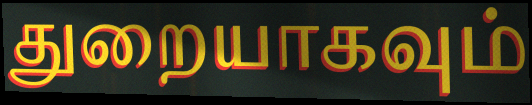
துறையாகவும்